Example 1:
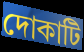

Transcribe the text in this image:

দোকাটি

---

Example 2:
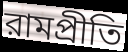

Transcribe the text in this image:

রামপ্রীতি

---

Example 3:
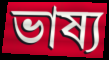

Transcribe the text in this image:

ভাষ্য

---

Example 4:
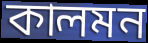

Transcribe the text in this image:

কালমন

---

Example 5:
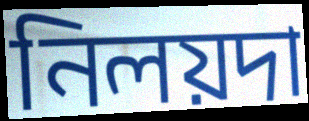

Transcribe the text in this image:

নিলয়দা